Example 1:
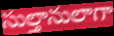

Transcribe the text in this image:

సుల్తానులాగా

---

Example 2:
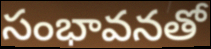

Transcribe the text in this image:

సంభావనతో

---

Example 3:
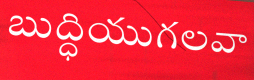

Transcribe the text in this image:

బుద్ధియుగలవా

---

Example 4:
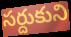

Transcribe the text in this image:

సర్దుకుని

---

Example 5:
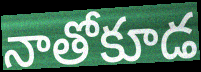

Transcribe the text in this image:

నాతోకూడ